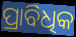
ପ୍ରାବିଧିକ